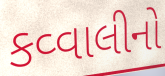
કવ્વાલીનો